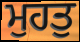
ਮੁਹਤੁ